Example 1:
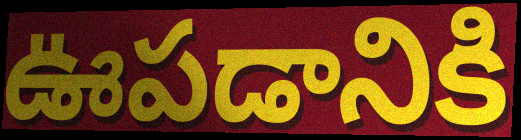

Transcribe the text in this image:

ఊపడానికి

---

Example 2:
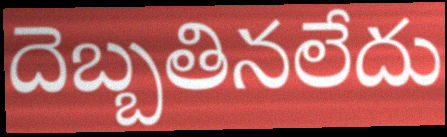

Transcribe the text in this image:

దెబ్బతినలేదు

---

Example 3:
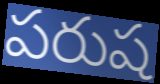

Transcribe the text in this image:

పరుష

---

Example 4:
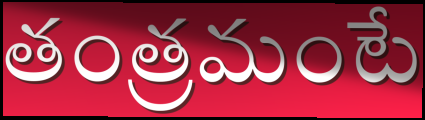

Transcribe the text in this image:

తంత్రమంటే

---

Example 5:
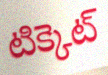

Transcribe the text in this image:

టిక్కెట్